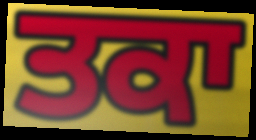
ਤਕਾ